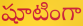
షూటింగా